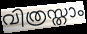
വിത്രസ്താം